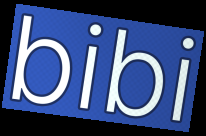
bibi